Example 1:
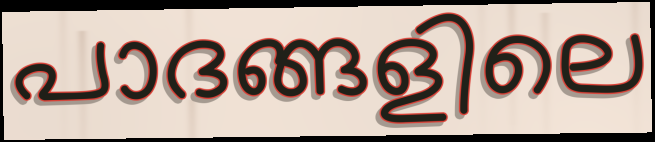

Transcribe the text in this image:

പാദങ്ങളിലെ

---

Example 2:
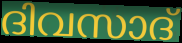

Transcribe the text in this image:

ദിവസാദ്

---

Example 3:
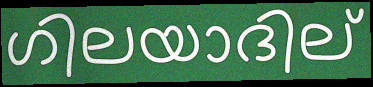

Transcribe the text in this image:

ഗിലയാദില്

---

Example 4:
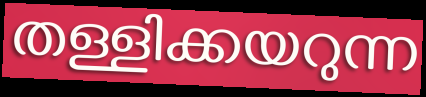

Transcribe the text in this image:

തള്ളിക്കയറുന്ന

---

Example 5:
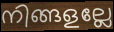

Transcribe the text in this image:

നിങ്ങളല്ലേ